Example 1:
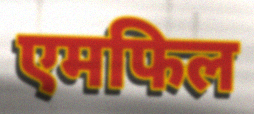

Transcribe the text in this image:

एमफिल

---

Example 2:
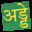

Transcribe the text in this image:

अड्डे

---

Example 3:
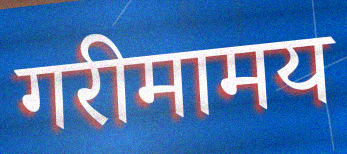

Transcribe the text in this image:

गरीमामय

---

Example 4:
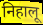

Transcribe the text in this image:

निहालू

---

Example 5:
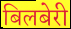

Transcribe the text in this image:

बिलबेरी